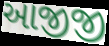
આજીજી